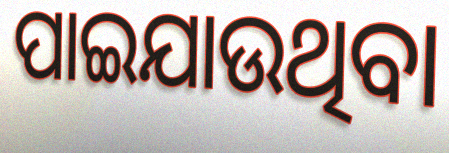
ପାଇଯାଉଥିବା